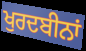
ਖੁਰਦਬੀਨਾਂ